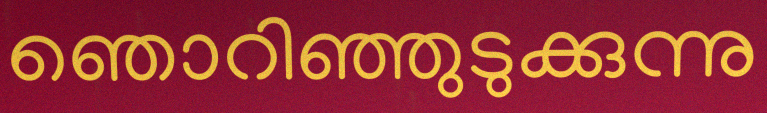
ഞൊറിഞ്ഞുടുക്കുന്നു